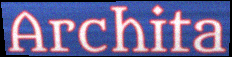
Archita